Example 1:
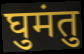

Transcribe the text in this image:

घुमंतु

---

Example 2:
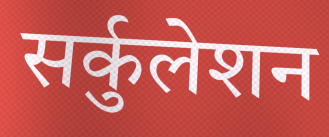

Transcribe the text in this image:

सर्कुलेशन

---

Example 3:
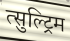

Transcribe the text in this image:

त्सुल्ट्रिम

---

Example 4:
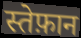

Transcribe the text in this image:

स्तेफ़ान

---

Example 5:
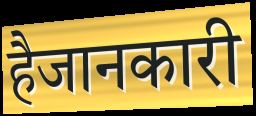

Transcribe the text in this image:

हैजानकारी